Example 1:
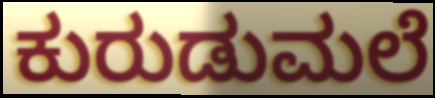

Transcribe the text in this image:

ಕುರುಡುಮಲೆ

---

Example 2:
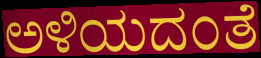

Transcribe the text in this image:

ಅಳಿಯದಂತೆ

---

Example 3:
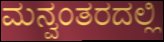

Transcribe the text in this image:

ಮನ್ವಂತರದಲ್ಲಿ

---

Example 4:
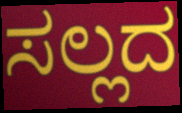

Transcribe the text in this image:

ಸಲ್ಲದ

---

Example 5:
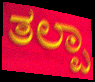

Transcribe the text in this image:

ತಲ್ಪಾ